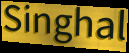
Singhal